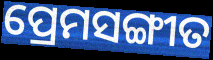
ପ୍ରେମସଙ୍ଗୀତ